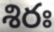
శిరః